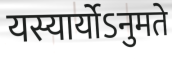
यस्यार्योऽनुमते